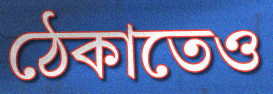
ঠেকাতেও